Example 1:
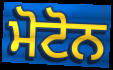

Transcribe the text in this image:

ਮੋਟੋਨ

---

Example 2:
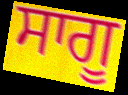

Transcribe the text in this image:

ਸਾਗੂ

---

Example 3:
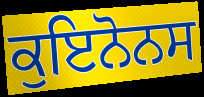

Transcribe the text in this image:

ਕੁਇਨੋਨਸ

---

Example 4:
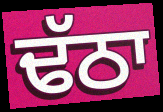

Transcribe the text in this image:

ਢੱਠਾ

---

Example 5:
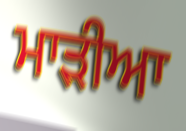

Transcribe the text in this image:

ਮਾੜੀਆ